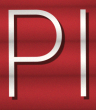
Pl